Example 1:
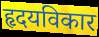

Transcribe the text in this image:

हृदयविकार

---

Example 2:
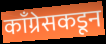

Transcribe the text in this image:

काँग्रेसकडून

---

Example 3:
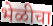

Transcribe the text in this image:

भेळीचा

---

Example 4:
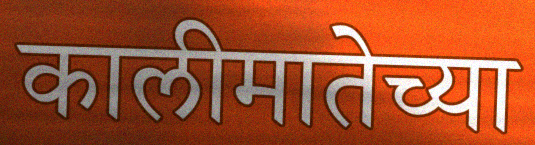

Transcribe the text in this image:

कालीमातेच्या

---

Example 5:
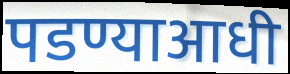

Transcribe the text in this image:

पडण्याआधी